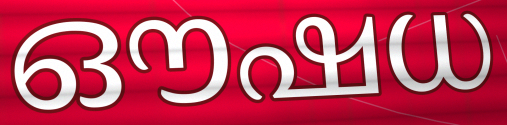
ഔഷധ